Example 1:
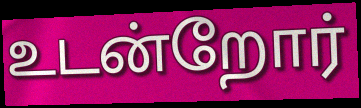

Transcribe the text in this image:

உடன்றோர்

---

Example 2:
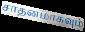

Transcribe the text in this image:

சாதனமாகவும்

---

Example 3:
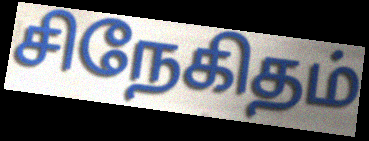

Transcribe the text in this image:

சிநேகிதம்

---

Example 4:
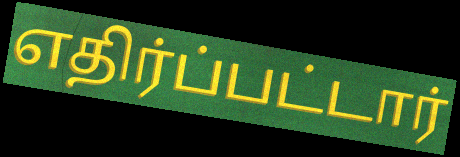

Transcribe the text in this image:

எதிர்ப்பட்டார்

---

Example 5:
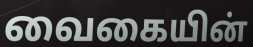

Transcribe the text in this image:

வைகையின்